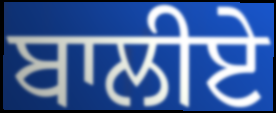
ਬਾਲੀਏ